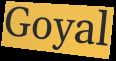
Goyal